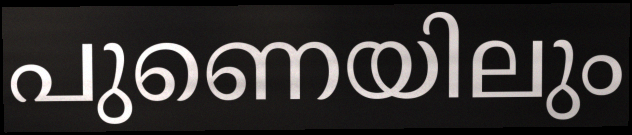
പുണെയിലും